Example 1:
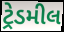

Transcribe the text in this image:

ટ્રેડમીલ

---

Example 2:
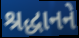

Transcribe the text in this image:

શ્રદ્ધાનને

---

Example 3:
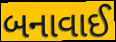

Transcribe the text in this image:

બનાવાઈ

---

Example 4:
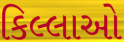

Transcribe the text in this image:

કિલ્લાઓ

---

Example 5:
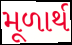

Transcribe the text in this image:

મૂળાર્થ